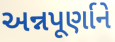
અન્નપૂર્ણાને